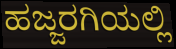
ಹಜ್ಜರಗಿಯಲ್ಲಿ